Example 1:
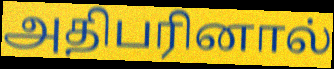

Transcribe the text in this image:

அதிபரினால்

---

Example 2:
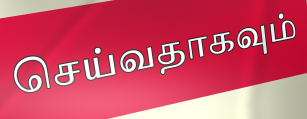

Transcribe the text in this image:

செய்வதாகவும்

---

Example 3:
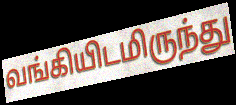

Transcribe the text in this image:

வங்கியிடமிருந்து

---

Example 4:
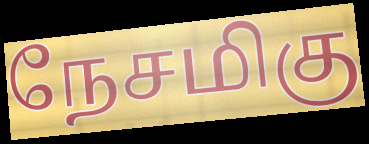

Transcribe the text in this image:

நேசமிகு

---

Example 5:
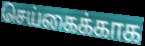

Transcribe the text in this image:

செய்கைக்காக